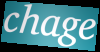
chage